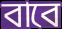
বাবে